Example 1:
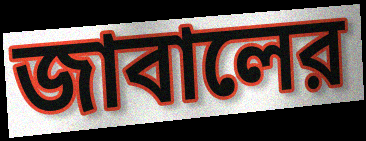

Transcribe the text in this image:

জাবালের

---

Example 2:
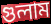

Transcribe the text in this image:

গুলাম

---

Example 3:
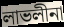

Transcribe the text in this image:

লাভলীনা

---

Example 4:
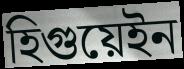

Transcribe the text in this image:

হিগুয়েইন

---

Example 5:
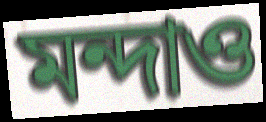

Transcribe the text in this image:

মন্দাও